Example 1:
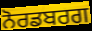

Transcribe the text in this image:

ਨੋਰਡਬਰਗ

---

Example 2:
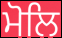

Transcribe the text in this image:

ਮੋਲਿ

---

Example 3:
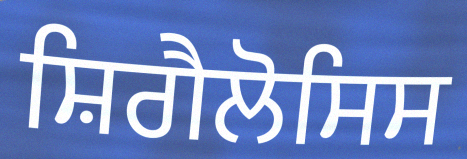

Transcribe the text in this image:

ਸ਼ਿਗੈਲੋਸਿਸ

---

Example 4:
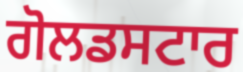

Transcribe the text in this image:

ਗੋਲਡਸਟਾਰ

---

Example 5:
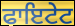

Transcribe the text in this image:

ਫਾਇਟੇਟ